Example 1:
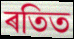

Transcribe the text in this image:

ৰতিত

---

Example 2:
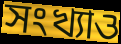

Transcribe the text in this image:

সংখ্যাও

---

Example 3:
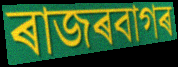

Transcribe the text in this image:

ৰাজৰবাগৰ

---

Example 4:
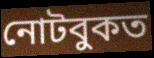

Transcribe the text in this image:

নোটবুকত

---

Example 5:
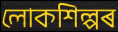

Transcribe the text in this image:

লোকশিল্পৰ